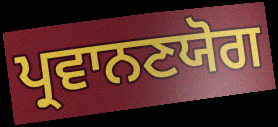
ਪ੍ਰਵਾਨਣਯੋਗ